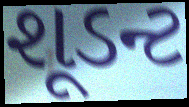
શૂડન્ટ